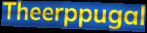
Theerppugal